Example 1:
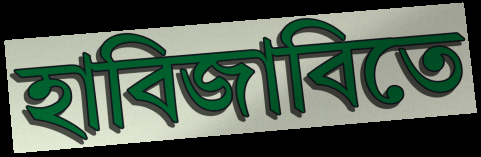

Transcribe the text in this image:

হাবিজাবিতে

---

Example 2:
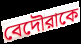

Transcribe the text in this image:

বেদৌরাকে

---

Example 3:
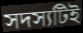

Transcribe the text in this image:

সদস্যটিই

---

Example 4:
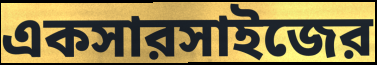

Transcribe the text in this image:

একসারসাইজের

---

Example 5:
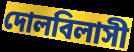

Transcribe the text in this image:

দোলবিলাসী